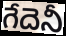
గేదెనీ